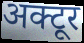
अक्टूर